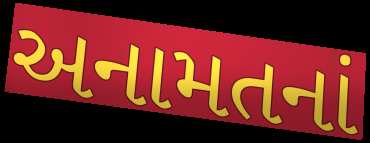
અનામતનાં